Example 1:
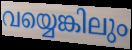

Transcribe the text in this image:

വയ്യെങ്കിലും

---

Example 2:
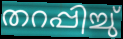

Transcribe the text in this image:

തറപ്പിച്ചു്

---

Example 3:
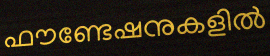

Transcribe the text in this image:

ഫൗണ്ടേഷനുകളിൽ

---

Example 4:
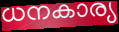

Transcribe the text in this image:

ധനകാര്യ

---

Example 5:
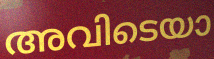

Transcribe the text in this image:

അവിടെയാ